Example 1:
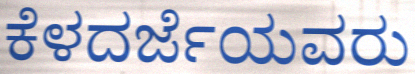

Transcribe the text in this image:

ಕೆಳದರ್ಜೆಯವರು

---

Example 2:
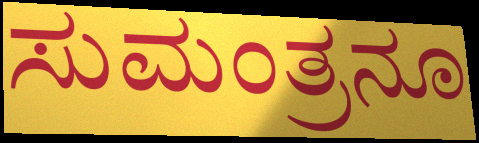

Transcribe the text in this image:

ಸುಮಂತ್ರನೂ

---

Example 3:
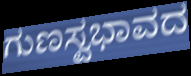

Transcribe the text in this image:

ಗುಣಸ್ವಭಾವದ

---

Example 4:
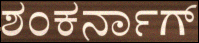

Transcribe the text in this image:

ಶಂಕರ್ನಾಗ್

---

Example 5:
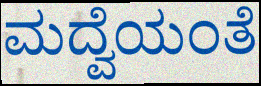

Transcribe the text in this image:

ಮದ್ವೆಯಂತೆ